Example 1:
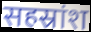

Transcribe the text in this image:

सहस्रांश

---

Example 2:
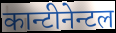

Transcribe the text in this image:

कान्टीनेन्टल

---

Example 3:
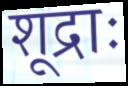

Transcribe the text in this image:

शूद्राः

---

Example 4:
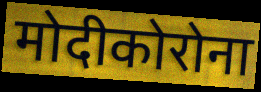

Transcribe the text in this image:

मोदीकोरोना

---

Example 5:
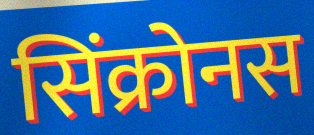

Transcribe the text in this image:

सिंक्रोनस